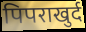
पिपराखुर्द